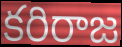
కరిరాజ